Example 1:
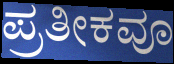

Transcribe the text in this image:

ಪ್ರತೀಕವೂ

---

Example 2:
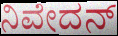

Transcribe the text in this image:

ನಿವೇದನ್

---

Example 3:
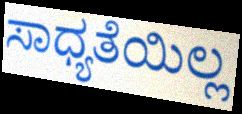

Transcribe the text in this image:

ಸಾಧ್ಯತೆಯಿಲ್ಲ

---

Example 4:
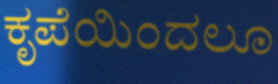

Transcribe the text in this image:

ಕೃಪೆಯಿಂದಲೂ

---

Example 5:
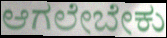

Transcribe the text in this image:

ಆಗಲೇಬೇಕು